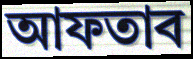
আফতাব